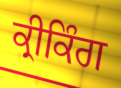
ਕ੍ਰੀਕਿੰਗ